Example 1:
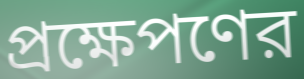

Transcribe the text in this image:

প্রক্ষেপণের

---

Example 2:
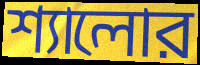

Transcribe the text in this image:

শ্যালোর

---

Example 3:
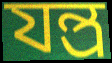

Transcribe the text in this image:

যন্ত্র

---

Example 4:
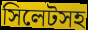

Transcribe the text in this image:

সিলেটসহ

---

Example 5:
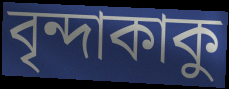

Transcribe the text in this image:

বৃন্দাকাকু